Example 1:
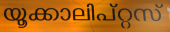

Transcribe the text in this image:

യൂക്കാലിപ്റ്റസ്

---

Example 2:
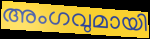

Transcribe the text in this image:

അംഗവുമായി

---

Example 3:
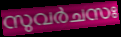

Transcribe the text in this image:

സുവർചസഃ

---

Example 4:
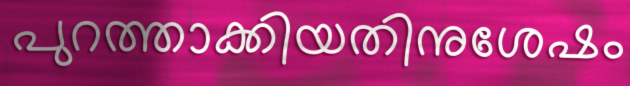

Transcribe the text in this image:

പുറത്താക്കിയതിനുശേഷം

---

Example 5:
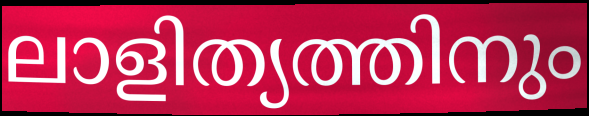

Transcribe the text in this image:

ലാളിത്യത്തിനും